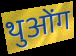
थुओंग